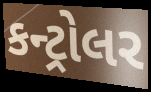
કન્ટ્રોલર